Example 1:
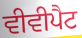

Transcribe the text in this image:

ਵੀਵੀਪੈਟ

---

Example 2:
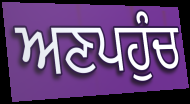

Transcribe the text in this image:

ਅਣਪਹੁੰਚ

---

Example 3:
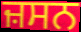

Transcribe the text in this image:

ਜ਼ਸਨ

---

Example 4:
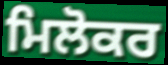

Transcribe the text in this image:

ਮਿਲੋਕਰ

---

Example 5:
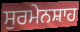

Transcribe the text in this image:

ਸੁਰਮੇਨਸ਼ਾਹ